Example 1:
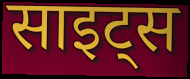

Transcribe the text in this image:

साइट्स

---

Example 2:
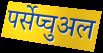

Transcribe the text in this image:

पर्सेप्चुअल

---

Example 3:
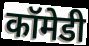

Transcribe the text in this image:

कॉमेडी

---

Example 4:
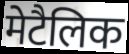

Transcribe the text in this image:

मेटैलिक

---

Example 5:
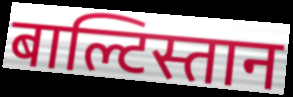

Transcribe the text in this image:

बाल्टिस्तान